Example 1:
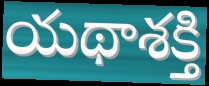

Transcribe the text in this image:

యథాశక్తి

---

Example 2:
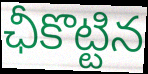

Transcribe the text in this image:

ఛీకొట్టిన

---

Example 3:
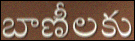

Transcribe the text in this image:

బాణీలకు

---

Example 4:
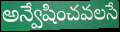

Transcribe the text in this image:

అన్వేషించవలసే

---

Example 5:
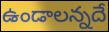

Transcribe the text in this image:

ఉండాలన్నదే